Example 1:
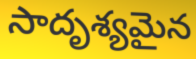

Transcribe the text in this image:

సాదృశ్యమైన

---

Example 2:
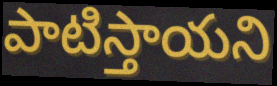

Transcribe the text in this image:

పాటిస్తాయని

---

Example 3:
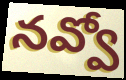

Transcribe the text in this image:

నవ్వో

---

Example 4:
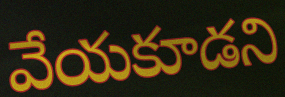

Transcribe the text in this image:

వేయకూడని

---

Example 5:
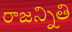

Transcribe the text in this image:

రాజన్నితి